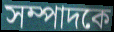
সম্পাদকে